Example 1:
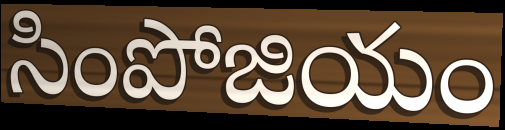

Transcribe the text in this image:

సింపోజియం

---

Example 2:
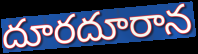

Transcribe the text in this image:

దూరదూరాన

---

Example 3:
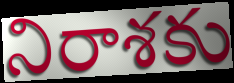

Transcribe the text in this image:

నిరాశకు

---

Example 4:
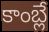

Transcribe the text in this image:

కాంబ్లే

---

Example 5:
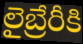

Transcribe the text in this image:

లైబ్రేరీకి